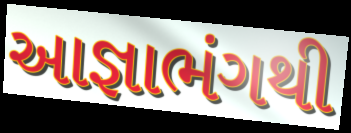
આજ્ઞાભંગથી